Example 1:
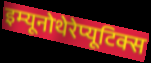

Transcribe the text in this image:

इम्यूनोथेरेप्यूटिक्स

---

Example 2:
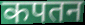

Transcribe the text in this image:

कपतन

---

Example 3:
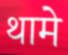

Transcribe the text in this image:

थामे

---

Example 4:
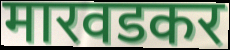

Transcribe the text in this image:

मारवडकर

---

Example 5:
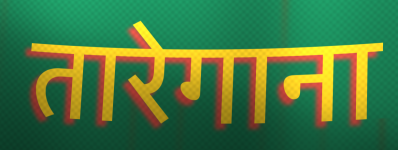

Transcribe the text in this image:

तारेगाना